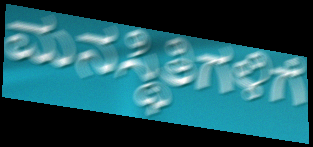
ಮನಸ್ಥಿತಿಗಳಿಗೆ